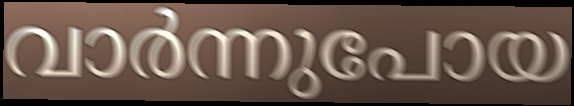
വാർന്നുപോയ